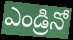
ఎండ్రినో